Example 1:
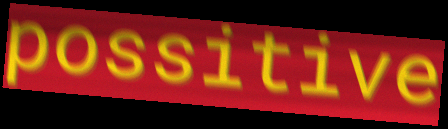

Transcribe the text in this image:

possitive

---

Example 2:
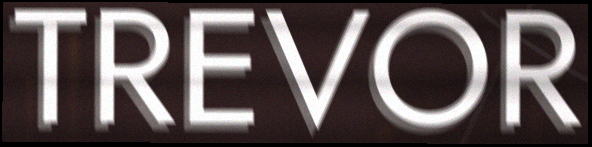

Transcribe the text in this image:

TREVOR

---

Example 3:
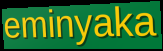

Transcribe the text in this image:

eminyaka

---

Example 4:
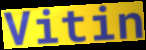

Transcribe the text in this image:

Vitin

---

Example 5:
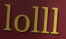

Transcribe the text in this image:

lolll